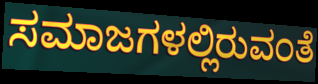
ಸಮಾಜಗಳಲ್ಲಿರುವಂತೆ